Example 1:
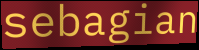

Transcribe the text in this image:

sebagian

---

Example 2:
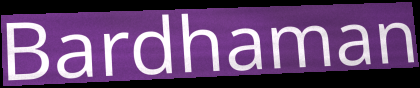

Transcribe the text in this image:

Bardhaman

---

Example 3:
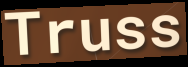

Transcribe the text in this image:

Truss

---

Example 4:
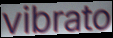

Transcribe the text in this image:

vibrato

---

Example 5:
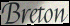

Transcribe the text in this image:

Breton